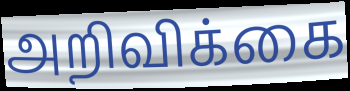
அறிவிக்கை